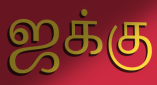
ஜக்கு